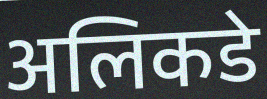
अलिकडे